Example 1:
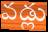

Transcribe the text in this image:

వడ్లు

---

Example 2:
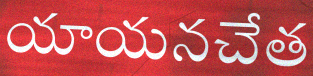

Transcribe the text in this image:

యాయనచేత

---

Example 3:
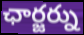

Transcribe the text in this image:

ఛార్జర్ను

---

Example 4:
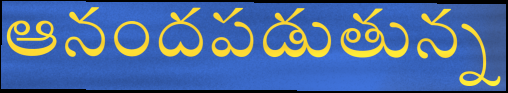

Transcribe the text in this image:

ఆనందపడుతున్న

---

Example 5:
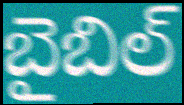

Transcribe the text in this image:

బైబిల్